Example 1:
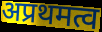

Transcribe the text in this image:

अप्रथमत्व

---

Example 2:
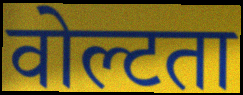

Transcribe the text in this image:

वोल्टता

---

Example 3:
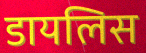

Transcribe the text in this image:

डायलिस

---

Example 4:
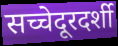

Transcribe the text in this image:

सच्चेदूरदर्शी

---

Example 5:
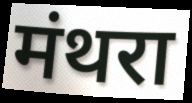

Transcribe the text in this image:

मंथरा